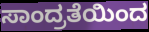
ಸಾಂದ್ರತೆಯಿಂದ